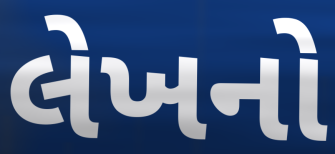
લેખનો